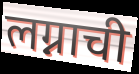
लग्नाची